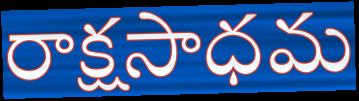
రాక్షసాధమ